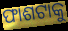
ଫାଶଟାକୁ